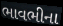
ભાવભીના